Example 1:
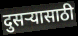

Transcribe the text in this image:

दुसऱ्यासाठी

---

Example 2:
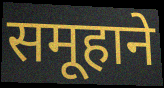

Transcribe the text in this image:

समूहाने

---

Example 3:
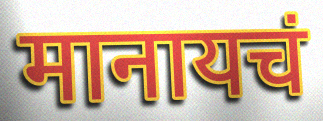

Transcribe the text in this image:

मानायचं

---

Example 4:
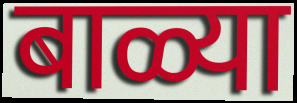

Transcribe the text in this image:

बाळ्या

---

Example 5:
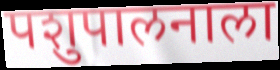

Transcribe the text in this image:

पशुपालनाला